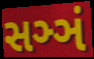
સઞ્ઞં